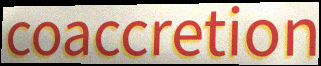
coaccretion